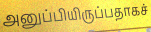
அனுப்பியிருப்பதாகச்